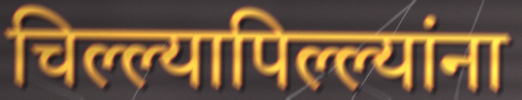
चिल्ल्यापिल्ल्यांना